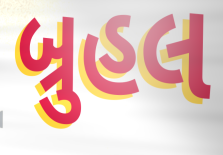
બ્રુહલ